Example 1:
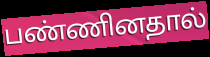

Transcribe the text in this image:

பண்ணினதால்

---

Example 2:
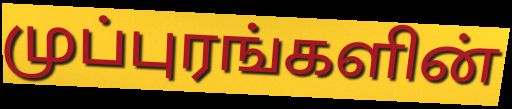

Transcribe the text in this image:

முப்புரங்களின்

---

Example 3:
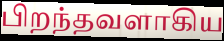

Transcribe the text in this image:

பிறந்தவளாகிய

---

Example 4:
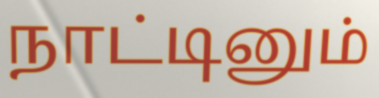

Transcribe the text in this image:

நாட்டினும்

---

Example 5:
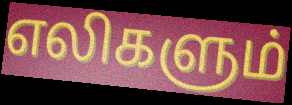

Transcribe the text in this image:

எலிகளும்